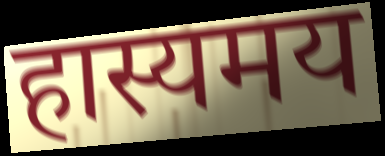
हास्यमय